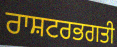
ਰਾਸ਼ਟਰਭਗਤੀ